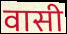
वासी